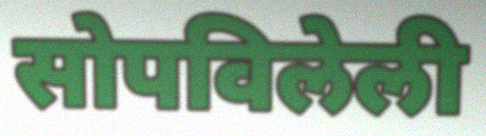
सोपविलेली